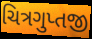
ચિત્રગુપ્તજી